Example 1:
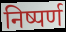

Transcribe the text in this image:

निष्पर्ण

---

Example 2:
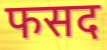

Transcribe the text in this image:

फसद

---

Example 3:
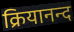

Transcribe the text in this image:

क्रियानन्द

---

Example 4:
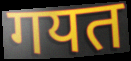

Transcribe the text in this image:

गयत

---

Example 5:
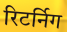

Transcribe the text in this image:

रिटर्निग